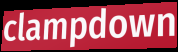
clampdown